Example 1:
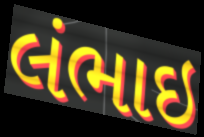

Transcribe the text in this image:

લંભાઇ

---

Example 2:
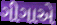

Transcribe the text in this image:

ગીગાએ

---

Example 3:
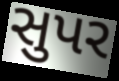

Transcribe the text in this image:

સુપર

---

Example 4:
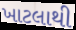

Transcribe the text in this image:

ખાટલાથી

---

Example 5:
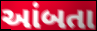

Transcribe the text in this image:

આંબતા